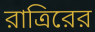
রাত্রিরের